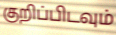
குறிப்பிடவும்